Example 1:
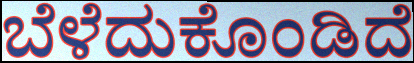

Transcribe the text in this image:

ಬೆಳೆದುಕೊಂಡಿದೆ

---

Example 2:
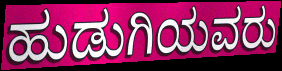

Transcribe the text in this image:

ಹುಡುಗಿಯವರು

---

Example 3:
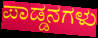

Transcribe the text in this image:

ಪಾಡ್ಡನಗಳು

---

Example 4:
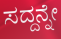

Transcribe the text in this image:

ಸದ್ದನ್ನೇ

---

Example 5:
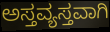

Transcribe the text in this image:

ಅಸ್ತವ್ಯಸ್ತವಾಗಿ